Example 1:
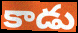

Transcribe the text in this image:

కాడు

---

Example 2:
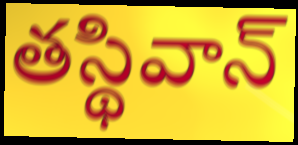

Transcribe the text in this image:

తస్థివాన్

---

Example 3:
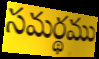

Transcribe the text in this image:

సమర్థము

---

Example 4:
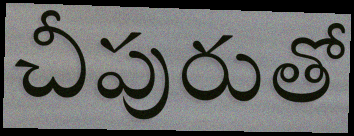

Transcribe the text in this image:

చీపురుతో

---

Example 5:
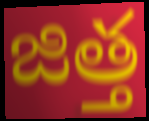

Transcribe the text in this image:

జిత్త